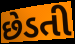
છેડતી